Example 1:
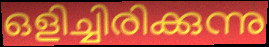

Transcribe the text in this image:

ഒളിച്ചിരിക്കുന്നു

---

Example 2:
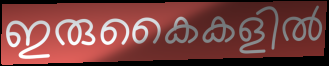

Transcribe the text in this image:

ഇരുകൈകളിൽ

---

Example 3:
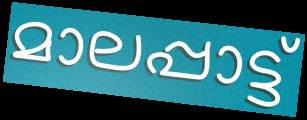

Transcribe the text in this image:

മാലപ്പാട്ട്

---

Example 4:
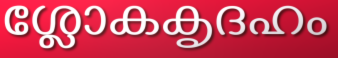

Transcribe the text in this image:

ശ്ലോകകൃദഹം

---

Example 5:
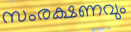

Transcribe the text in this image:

സംരക്ഷണവും